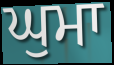
ਘੁਮਾ